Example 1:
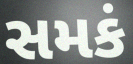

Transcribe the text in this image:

સમકં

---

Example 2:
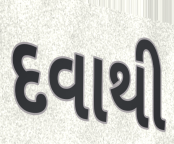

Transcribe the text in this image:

દવાથી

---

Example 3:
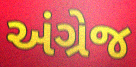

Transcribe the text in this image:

અંગ્રેજ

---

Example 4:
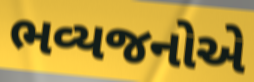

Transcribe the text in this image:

ભવ્યજનોએ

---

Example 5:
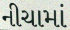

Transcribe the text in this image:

નીચામાં